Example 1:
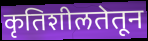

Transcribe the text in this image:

कृतिशीलतेतून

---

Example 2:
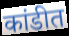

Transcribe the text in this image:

कांडीत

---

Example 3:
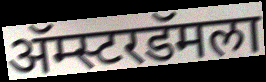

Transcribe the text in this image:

ॲम्स्टरडॅमला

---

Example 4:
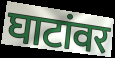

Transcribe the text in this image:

घाटांवर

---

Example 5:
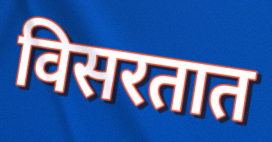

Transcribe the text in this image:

विसरतात